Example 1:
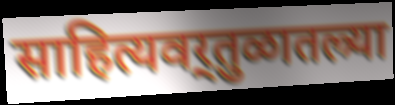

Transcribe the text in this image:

साहित्यवर्तुळातल्या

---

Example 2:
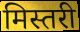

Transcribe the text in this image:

मिस्तरी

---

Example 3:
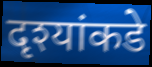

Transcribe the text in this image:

दृश्यांकडे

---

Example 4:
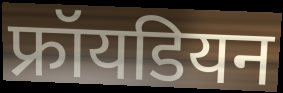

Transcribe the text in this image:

फ्रॉयडियन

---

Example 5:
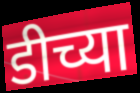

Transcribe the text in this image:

डीच्या